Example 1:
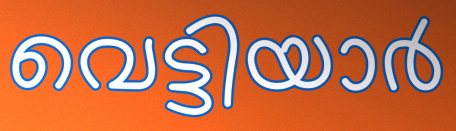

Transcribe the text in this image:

വെട്ടിയാർ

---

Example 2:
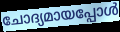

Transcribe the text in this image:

ചോദ്യമായപ്പോൾ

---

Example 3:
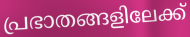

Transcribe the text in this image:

പ്രഭാതങ്ങളിലേക്ക്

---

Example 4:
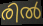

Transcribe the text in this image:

രിൽ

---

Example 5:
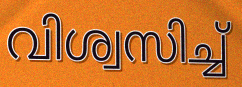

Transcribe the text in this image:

വിശ്വസിച്ച്